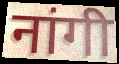
नांगी